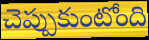
చెప్పుకుంటోంది